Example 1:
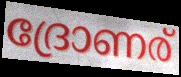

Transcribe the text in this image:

ദ്രോണര്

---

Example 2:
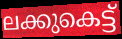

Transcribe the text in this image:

ലക്കുകെട്ട്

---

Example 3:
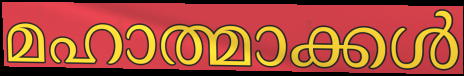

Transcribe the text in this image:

മഹാത്മാക്കൾ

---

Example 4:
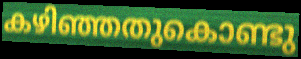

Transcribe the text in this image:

കഴിഞ്ഞതുകൊണ്ടു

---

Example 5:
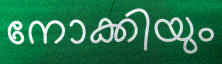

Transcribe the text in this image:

നോക്കിയും